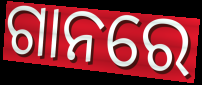
ଗାନରେ